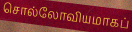
சொல்லோவியமாகப்